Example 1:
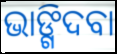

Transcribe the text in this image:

ଭାଙ୍ଗିଦବା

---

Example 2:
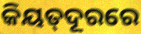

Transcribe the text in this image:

କିୟତ୍‌ଦୂରରେ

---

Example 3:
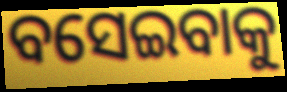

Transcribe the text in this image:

ବସେଇବାକୁ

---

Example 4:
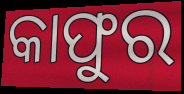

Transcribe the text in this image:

କାଫୁର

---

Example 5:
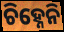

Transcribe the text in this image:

ଚିହ୍ନେନି